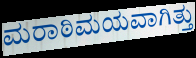
ಮರಾಠಿಮಯವಾಗಿತ್ತು